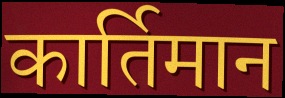
कार्तिमान